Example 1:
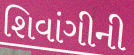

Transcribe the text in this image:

શિવાંગીની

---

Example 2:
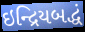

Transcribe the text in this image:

ઇન્દ્રિયબદ્ધં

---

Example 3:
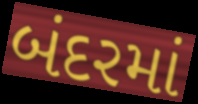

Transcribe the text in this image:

બંદરમાં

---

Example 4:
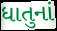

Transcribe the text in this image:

ધાતુનાં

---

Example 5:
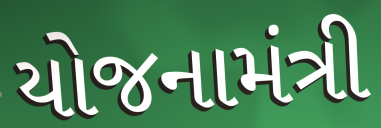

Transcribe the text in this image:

યોજનામંત્રી